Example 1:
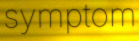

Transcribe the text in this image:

symptom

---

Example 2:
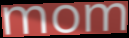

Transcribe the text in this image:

mom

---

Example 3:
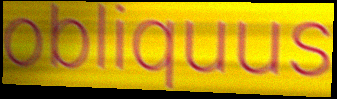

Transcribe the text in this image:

obliquus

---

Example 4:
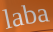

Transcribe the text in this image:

laba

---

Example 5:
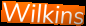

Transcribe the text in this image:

Wilkins